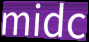
midc